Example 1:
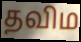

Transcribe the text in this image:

தவிம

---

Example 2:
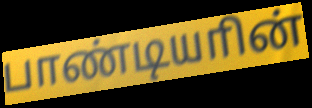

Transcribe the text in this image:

பாண்டியரின்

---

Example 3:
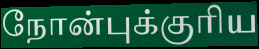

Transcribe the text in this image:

நோன்புக்குரிய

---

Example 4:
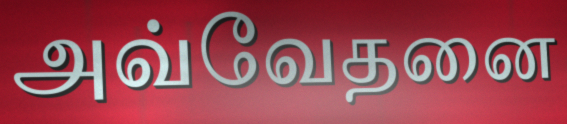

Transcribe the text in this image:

அவ்வேதனை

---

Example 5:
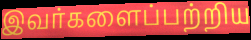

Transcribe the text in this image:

இவர்களைப்பற்றிய